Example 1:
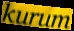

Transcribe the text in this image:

kurum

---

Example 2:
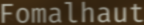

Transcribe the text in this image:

Fomalhaut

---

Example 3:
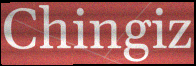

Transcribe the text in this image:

Chingiz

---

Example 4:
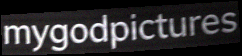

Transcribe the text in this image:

mygodpictures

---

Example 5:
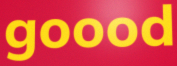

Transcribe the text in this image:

goood